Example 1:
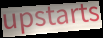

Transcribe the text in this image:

upstarts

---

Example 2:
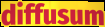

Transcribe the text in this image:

diffusum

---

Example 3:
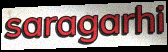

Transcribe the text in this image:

saragarhi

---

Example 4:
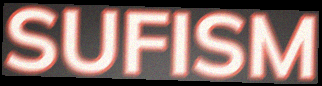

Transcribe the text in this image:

SUFISM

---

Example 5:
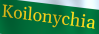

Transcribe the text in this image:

Koilonychia